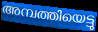
അമ്പത്തിയെട്ടു